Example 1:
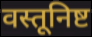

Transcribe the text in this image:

वस्तूनिष्ट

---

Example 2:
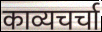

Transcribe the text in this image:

काव्यचर्चा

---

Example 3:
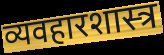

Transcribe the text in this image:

व्यवहारशास्त्र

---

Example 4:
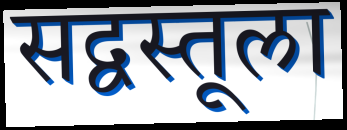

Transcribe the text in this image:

सद्वस्तूला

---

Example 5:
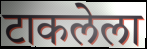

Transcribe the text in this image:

टाकलेला